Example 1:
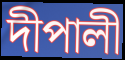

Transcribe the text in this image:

দীপালী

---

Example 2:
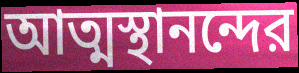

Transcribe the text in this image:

আত্মস্থানন্দের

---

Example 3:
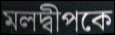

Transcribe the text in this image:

মলদ্বীপকে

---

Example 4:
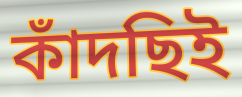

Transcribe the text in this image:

কাঁদছিই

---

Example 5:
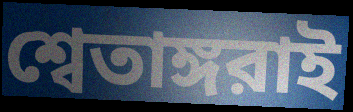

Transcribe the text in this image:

শ্বেতাঙ্গরাই